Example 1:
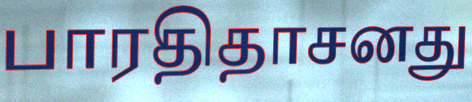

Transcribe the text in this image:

பாரதிதாசனது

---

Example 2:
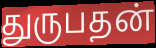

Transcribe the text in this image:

துருபதன்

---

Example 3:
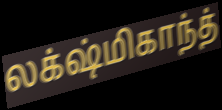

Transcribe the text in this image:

லக்‌ஷ்மிகாந்த்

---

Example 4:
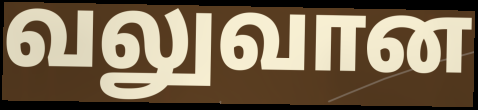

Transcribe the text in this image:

வலுவான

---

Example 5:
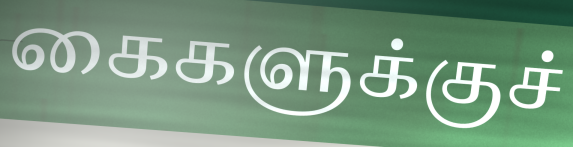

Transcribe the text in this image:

கைகளுக்குச்